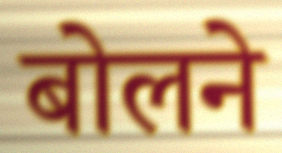
बोलने